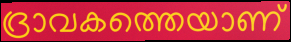
ദ്രാവകത്തെയാണ്